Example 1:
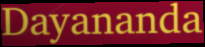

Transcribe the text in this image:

Dayananda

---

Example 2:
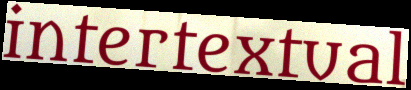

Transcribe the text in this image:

intertextual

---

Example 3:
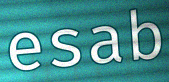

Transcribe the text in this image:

esab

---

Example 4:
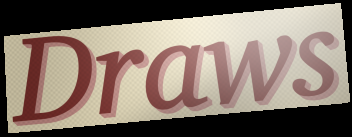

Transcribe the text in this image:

Draws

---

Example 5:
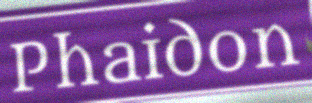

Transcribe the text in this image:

Phaidon